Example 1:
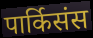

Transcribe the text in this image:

पार्किसंस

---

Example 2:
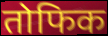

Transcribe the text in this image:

तोफिक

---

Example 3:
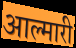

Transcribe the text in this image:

आल्मारी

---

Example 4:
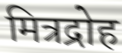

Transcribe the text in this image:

मित्रद्रोह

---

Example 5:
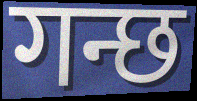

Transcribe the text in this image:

गन्छ